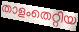
താളംതെറ്റിയ